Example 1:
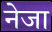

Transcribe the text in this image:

नेजा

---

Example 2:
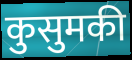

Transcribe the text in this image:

कुसुमकी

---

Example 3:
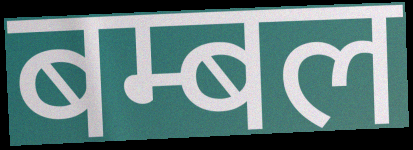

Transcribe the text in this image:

बम्बल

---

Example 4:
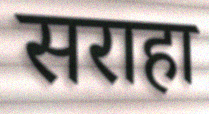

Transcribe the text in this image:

सराहा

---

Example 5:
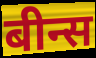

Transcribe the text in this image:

बीन्स